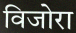
विजोरा